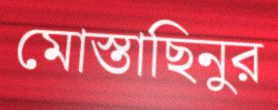
মোস্তাছিনুর